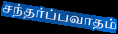
சந்தர்ப்பவாதம்